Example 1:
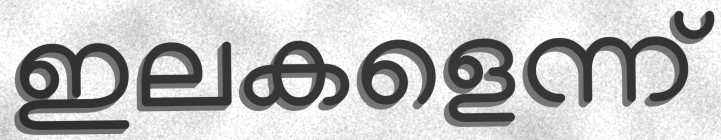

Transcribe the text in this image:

ഇലകളെന്ന്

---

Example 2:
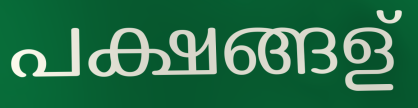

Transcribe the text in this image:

പക്ഷങ്ങള്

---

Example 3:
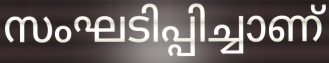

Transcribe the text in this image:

സംഘടിപ്പിച്ചാണ്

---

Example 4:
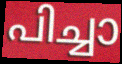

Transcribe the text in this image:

പിച്ചാ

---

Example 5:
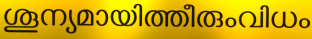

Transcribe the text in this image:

ശൂന്യമായിത്തീരുംവിധം